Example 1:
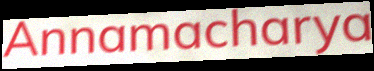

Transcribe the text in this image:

Annamacharya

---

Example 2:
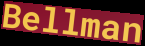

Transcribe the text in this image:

Bellman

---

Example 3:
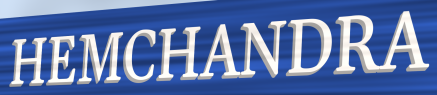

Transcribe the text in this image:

HEMCHANDRA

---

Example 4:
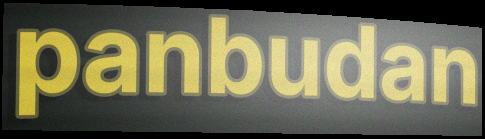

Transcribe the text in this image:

panbudan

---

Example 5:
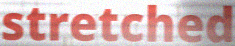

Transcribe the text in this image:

stretched